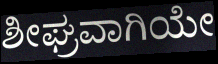
ಶೀಘ್ರವಾಗಿಯೇ